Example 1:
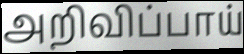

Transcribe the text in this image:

அறிவிப்பாய்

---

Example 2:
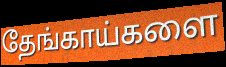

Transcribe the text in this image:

தேங்காய்களை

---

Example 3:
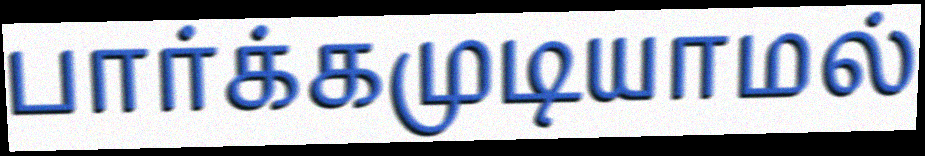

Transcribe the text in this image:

பார்க்கமுடியாமல்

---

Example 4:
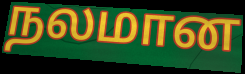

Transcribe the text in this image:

நலமான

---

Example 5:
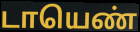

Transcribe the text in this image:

டாயெண்